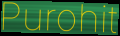
Purohit